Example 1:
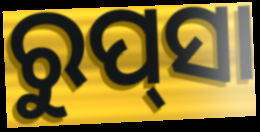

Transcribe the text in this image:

ରୁପ୍‍ସା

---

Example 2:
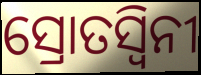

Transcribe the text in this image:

ସ୍ରୋତସ୍ୱିନୀ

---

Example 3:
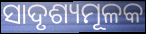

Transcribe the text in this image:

ସାଦୃଶ୍ୟମୂଳକ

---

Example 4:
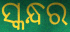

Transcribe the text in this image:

ସ୍କନ୍ଧର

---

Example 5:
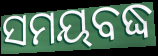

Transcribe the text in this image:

ସମୟବଦ୍ଧ